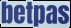
betpas